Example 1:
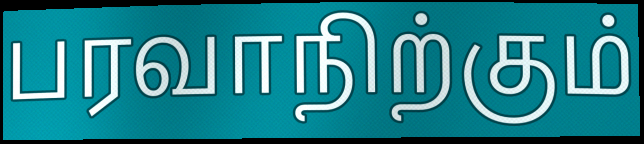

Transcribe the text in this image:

பரவாநிற்கும்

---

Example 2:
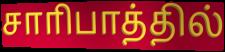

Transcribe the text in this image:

சாரிபாத்தில்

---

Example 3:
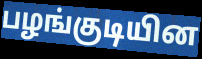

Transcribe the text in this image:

பழங்குடியின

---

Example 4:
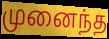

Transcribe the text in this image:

முனைந்த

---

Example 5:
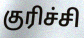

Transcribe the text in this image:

குரிச்சி